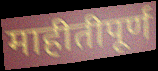
माहीतीपूर्ण